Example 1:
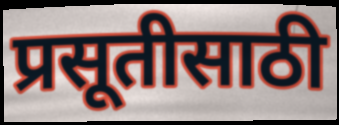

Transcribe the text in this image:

प्रसूतीसाठी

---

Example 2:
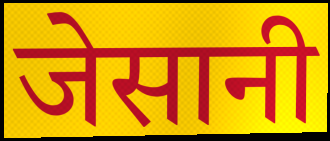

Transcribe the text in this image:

जेसानी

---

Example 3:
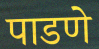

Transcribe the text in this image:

पाडणे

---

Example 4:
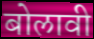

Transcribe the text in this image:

बोलावी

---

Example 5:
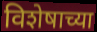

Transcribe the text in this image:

विशेषाच्या